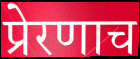
प्रेरणाच